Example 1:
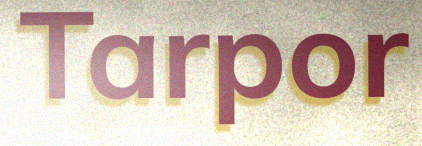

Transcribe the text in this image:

Tarpor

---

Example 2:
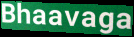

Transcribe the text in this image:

Bhaavaga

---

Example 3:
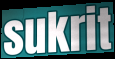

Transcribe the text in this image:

sukrit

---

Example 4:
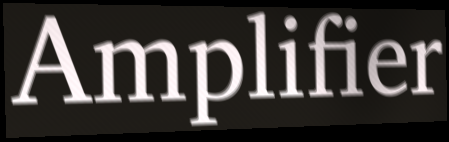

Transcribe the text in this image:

Amplifier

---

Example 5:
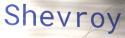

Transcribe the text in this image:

Shevroy